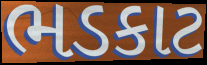
ભડકાટ